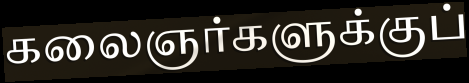
கலைஞர்களுக்குப்